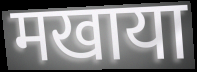
मखाया